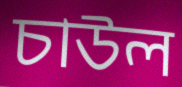
চাউল